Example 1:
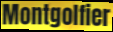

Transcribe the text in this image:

Montgolfier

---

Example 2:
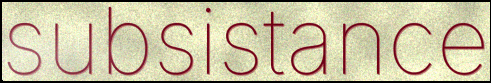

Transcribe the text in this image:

subsistance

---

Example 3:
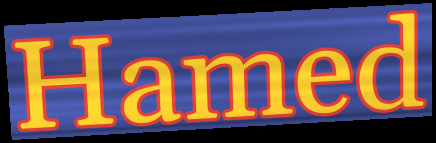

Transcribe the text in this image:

Hamed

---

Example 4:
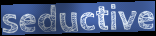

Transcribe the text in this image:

seductive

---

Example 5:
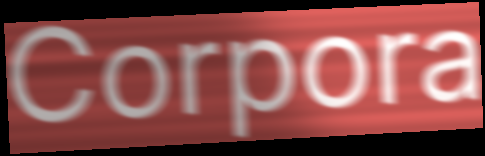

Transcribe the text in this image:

Corpora